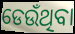
ଡେଉଁଥିବା